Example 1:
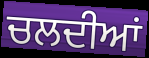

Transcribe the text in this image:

ਚਲਦੀਆਂ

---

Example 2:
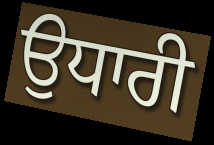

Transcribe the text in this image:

ਉਧਾਰੀ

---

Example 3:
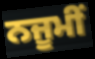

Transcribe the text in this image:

ਨਜੂਮੀਂ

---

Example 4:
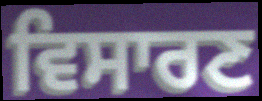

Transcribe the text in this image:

ਵਿਸਾਰਣ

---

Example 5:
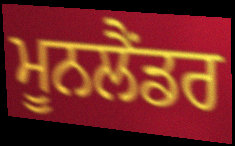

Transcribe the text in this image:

ਮੂਨਲੈਂਡਰ